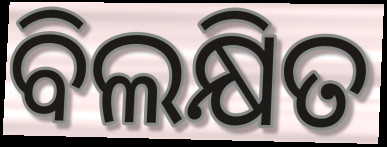
ବିଲକ୍ଷିତ